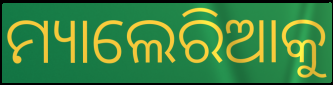
ମ୍ୟାଲେରିଆକୁ